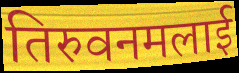
तिरुवनमलाई